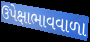
ઉપેક્ષાભાવવાળા